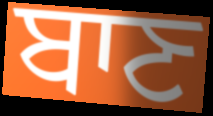
ਬਾਣ